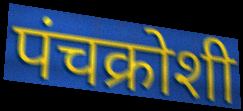
पंचक्रोशी